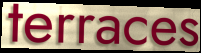
terraces